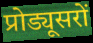
प्रोड्यूसरों